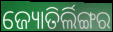
ଜ୍ୟୋତିର୍ଲିଙ୍ଗର